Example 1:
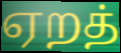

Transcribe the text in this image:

ஏறத்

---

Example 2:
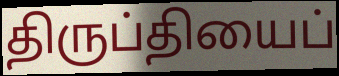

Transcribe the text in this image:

திருப்தியைப்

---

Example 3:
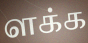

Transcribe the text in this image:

ளக்க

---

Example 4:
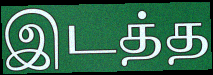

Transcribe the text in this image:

இடத்த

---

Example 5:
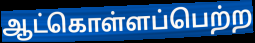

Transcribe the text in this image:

ஆட்கொள்ளப்பெற்ற